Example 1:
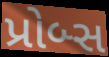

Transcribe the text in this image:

પ્રોબ્સ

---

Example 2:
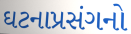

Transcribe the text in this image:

ઘટનાપ્રસંગનો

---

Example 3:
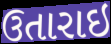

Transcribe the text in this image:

ઉતારાઇ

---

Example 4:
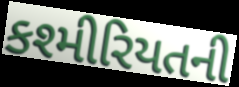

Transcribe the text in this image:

કશ્મીરિયતની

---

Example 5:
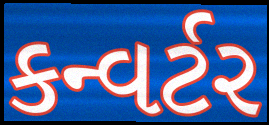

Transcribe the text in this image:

કન્વર્ટર